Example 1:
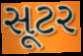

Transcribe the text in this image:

સૂટર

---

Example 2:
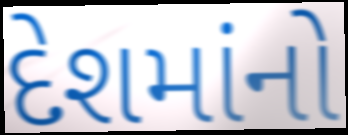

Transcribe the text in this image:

દેશમાંનો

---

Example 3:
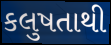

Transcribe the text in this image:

કલુષતાથી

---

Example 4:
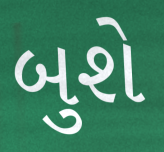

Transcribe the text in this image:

બુશે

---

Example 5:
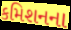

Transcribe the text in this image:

કમિશનના